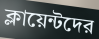
ক্লায়েন্টদের